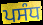
ਪਸੰਧ